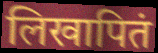
लिखापितं